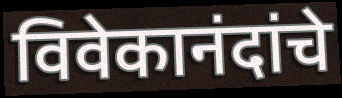
विवेकानंदांचे